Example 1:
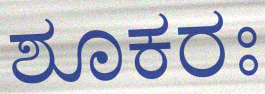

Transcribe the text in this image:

ಶೂಕರಃ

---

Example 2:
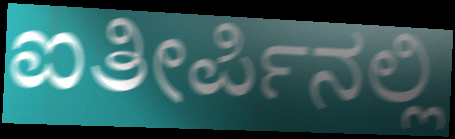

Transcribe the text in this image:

ಐತೀರ್ಪಿನಲ್ಲಿ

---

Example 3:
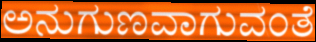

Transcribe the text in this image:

ಅನುಗುಣವಾಗುವಂತೆ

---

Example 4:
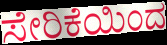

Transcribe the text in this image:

ಸೇರಿಕೆಯಿಂದ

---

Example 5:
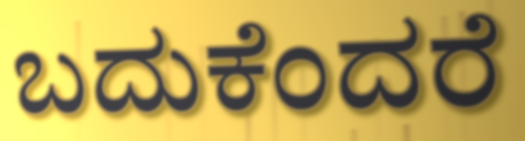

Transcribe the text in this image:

ಬದುಕೆಂದರೆ